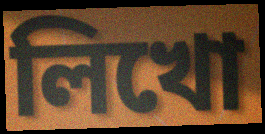
লিখো